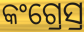
କଂଗ୍ରେସ୍ର